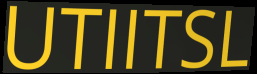
UTIITSL